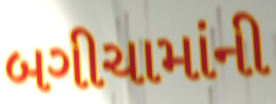
બગીચામાંની